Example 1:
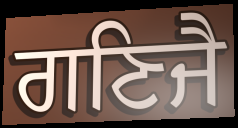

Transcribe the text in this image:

ਗਣਿਜੈ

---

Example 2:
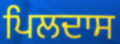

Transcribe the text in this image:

ਪਿਲਦਾਸ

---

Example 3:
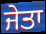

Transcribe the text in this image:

ਜੇਤਾ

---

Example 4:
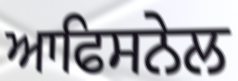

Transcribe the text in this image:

ਆਫਿਸਨੇਲ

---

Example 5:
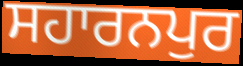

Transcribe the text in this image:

ਸਹਾਰਨਪੁਰ